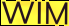
WIM